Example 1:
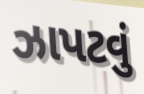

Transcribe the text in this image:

ઝાપટવું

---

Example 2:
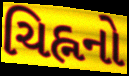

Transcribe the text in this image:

ચિહ્નનો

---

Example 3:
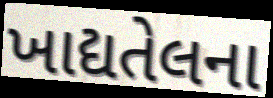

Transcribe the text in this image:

ખાદ્યતેલના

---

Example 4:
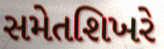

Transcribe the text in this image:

સમેતશિખરે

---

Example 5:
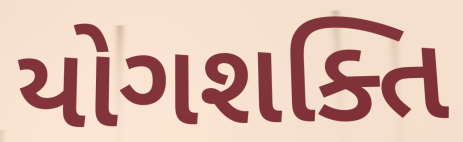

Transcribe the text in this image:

યોગશક્તિ